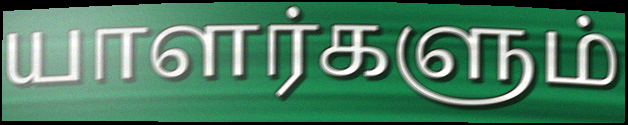
யாளர்களும்